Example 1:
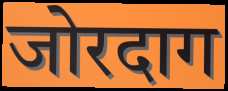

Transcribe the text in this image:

जोरदाग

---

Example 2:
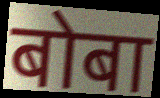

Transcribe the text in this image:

बोबा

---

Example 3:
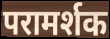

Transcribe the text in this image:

परामर्शक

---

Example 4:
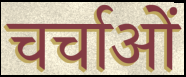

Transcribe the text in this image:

चर्चाओं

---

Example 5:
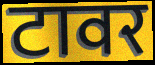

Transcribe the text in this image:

टावर